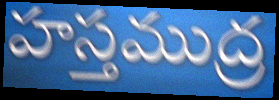
హస్తముద్ర